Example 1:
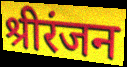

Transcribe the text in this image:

श्रीरंजन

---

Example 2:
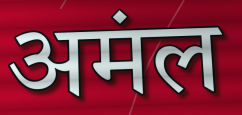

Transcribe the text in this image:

अमंल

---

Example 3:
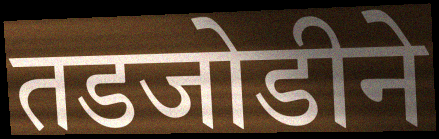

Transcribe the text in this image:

तडजोडीने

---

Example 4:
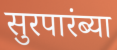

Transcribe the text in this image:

सुरपारंब्या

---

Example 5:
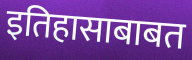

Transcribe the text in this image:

इतिहासाबाबत